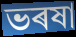
ভৰষা